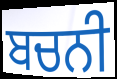
ਬਚਨੀ